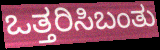
ಒತ್ತರಿಸಿಬಂತು